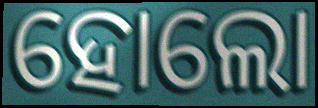
ହୋଲୋ